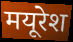
मयूरेश